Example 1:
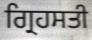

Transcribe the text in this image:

ਗ੍ਰਿਹਸਤੀ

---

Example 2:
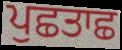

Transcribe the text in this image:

ਪੁਛਤਾਛ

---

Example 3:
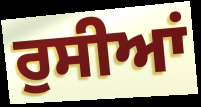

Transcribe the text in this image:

ਰੁਸੀਆਂ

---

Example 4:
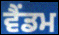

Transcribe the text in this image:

ਵੈਂਡਮ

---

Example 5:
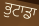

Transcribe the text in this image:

ਭੁਟਾਡਾ